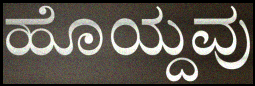
ಹೊಯ್ದವು